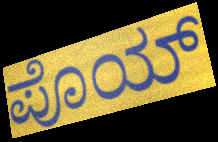
ಪೊಯ್